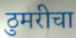
ठुमरीचा